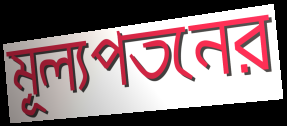
মূল্যপতনের